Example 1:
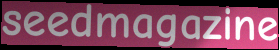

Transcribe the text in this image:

seedmagazine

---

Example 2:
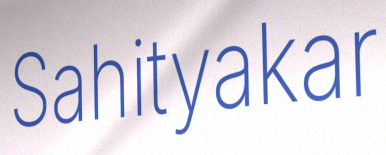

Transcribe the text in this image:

Sahityakar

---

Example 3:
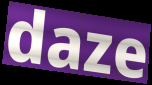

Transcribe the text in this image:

daze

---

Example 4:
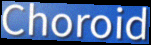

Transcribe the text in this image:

Choroid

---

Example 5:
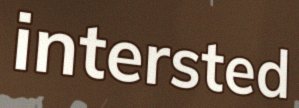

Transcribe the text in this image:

intersted